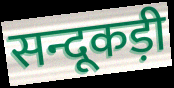
सन्दूकड़ी